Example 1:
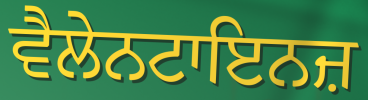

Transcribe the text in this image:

ਵੈਲੇਨਟਾਇਨਜ਼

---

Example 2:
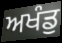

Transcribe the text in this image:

ਅਖੰਡੁ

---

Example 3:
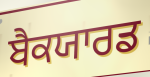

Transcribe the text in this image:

ਬੈਕਯਾਰਡ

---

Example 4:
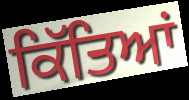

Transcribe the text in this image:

ਕਿੱਤਿਆਂ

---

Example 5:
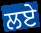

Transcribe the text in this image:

ਲਏ